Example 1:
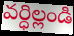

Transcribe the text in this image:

వర్ధిల్లండి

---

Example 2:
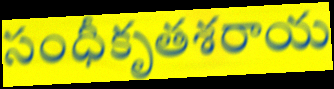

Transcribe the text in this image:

సంధీకృతశరాయ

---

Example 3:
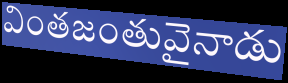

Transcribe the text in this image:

వింతజంతువైనాడు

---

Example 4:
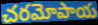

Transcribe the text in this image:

చరమోపాయ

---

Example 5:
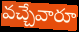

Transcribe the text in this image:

వచ్చేవారూ